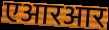
एआरआर